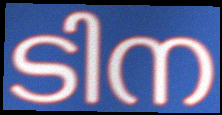
ടിന